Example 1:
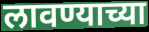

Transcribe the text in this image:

लावण्याच्या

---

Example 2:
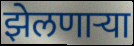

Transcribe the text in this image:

झेलणाऱ्या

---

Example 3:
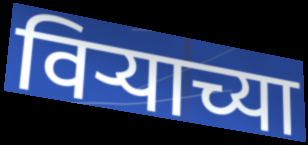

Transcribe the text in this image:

विर्‍याच्या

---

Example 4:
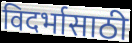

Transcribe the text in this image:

विदर्भासाठी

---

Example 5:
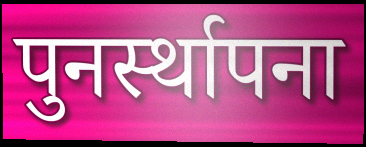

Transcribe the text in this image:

पुनर्स्थापना